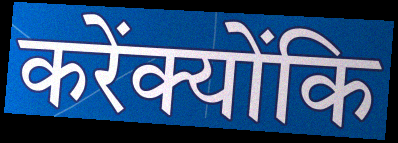
करेंक्योंकि